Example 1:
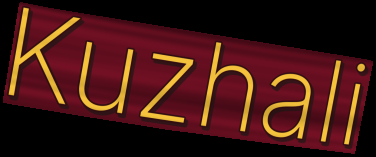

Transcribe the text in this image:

Kuzhali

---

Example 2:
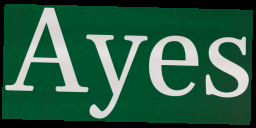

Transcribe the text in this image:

Ayes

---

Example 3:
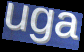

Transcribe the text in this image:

uga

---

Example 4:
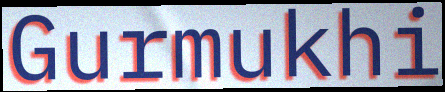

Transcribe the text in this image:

Gurmukhi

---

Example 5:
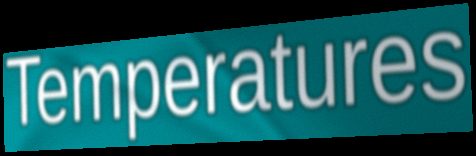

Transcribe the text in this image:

Temperatures